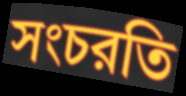
সংচরতি